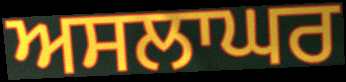
ਅਸਲਾਘਰ